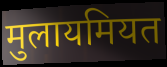
मुलायमियत